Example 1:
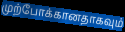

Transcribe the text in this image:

முற்போக்கானதாகவும்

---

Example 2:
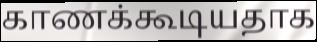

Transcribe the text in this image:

காணக்கூடியதாக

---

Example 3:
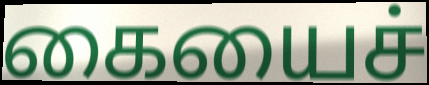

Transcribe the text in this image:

கையைச்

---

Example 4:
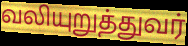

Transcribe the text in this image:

வலியுறுத்துவர்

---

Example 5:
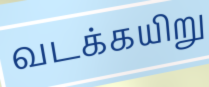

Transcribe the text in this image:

வடக்கயிறு